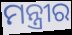
ମନ୍ତ୍ରୀର